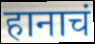
हानाचं